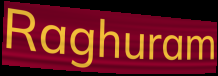
Raghuram